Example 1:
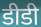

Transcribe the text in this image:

डीडी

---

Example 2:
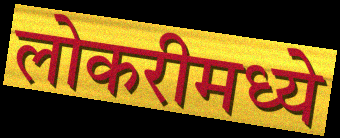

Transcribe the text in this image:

लोकरीमध्ये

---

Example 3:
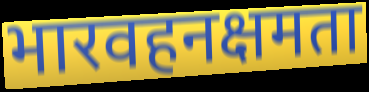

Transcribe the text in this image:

भारवहनक्षमता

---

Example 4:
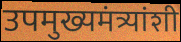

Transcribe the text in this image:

उपमुख्यमंत्र्यांशी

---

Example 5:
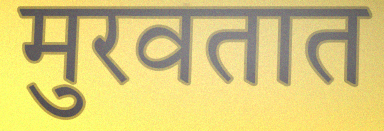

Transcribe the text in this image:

मुरवतात